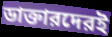
ডাক্তারদেরই